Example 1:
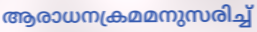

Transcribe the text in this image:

ആരാധനക്രമമനുസരിച്ച്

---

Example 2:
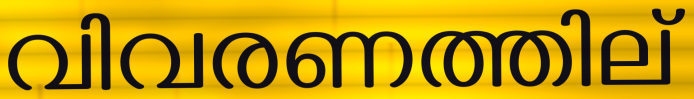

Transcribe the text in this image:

വിവരണത്തില്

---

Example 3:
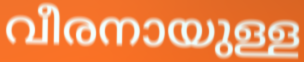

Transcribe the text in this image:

വീരനായുള്ള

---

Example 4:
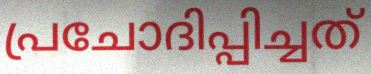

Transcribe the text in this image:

പ്രചോദിപ്പിച്ചത്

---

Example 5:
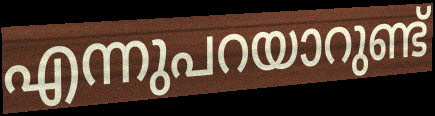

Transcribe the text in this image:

എന്നുപറയാറുണ്ട്